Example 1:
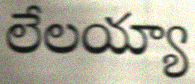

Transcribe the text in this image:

లేలయ్యా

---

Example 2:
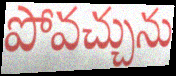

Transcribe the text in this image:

పోవచ్చును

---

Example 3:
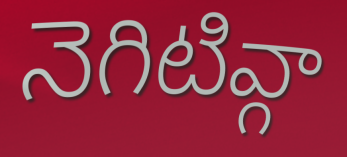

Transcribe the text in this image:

నెగిటివ్గా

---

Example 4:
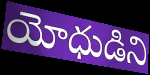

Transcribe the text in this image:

యోధుడిని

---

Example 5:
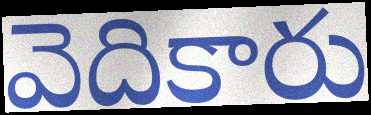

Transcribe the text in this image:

వెదికారు